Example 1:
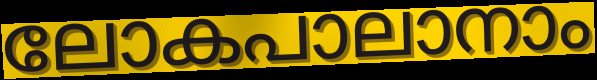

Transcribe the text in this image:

ലോകപാലാനാം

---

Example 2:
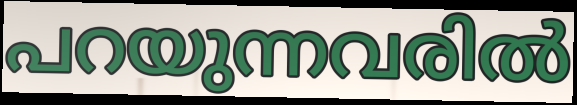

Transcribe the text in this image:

പറയുന്നവരിൽ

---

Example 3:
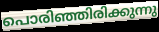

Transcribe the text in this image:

പൊരിഞ്ഞിരിക്കുന്നു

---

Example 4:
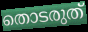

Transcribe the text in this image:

തൊടരുത്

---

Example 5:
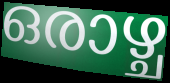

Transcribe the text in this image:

ഒരാഴ്ച